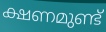
ക്ഷണമുണ്ട്